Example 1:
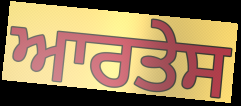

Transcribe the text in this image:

ਆਰਤੇਸ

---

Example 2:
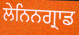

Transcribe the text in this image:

ਲੇਨਿਨਗ੍ਰਾਡ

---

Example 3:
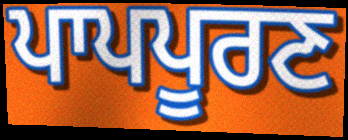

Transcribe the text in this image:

ਪਾਪਪੂਰਣ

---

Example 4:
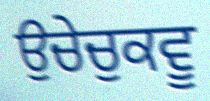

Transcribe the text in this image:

ਉਚੇਚੁਕਵੂ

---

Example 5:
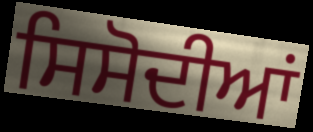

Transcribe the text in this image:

ਸਿਸੋਦੀਆਂ